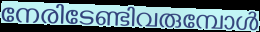
നേരിടേണ്ടിവരുമ്പോൾ